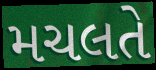
મચલતે